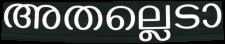
അതല്ലെടാ